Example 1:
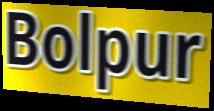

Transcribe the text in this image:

Bolpur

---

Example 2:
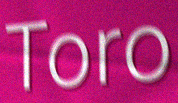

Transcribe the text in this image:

Toro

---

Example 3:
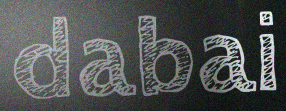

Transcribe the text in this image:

dabai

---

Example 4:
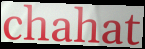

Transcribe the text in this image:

chahat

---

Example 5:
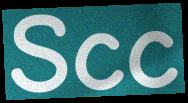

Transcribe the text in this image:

Scc